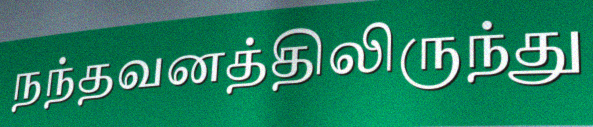
நந்தவனத்திலிருந்து